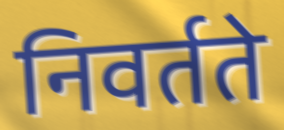
निवर्तते